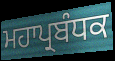
ਮਹਾਪ੍ਰਬੰਧਕ